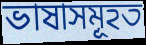
ভাষাসমূহত